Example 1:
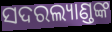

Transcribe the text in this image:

ସଦରଲ୍ୟାଣ୍ଡଙ୍କ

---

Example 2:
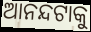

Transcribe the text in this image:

ଆନନ୍ଦଟାକୁ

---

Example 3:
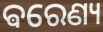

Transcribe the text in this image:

ଵରେଣ୍ୟ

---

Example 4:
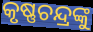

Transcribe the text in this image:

କୃଷ୍ଣଚନ୍ଦ୍ରଙ୍କୁ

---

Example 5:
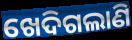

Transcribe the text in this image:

ଖେଦିଗଲାଣି